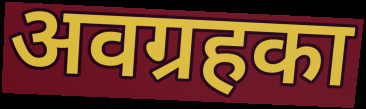
अवग्रहका